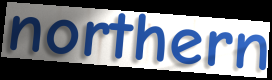
northern